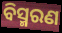
ବିସ୍ମରଣ